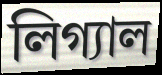
লিগ্যাল